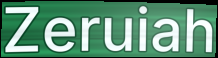
Zeruiah